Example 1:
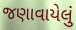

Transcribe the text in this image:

જણાવાયેલું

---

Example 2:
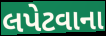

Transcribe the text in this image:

લપેટવાના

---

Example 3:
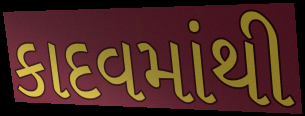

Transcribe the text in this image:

કાદવમાંથી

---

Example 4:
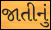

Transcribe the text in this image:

જાતીનું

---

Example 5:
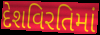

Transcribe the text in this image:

દેશવિરતિમાં